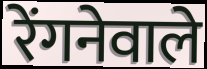
रेंगनेवाले